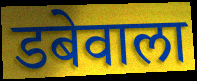
डबेवाला